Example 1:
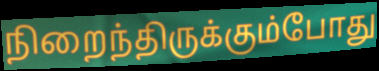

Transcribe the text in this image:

நிறைந்திருக்கும்போது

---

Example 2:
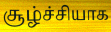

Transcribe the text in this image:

சூழ்ச்சியாக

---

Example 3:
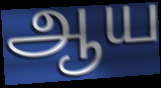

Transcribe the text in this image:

ஆய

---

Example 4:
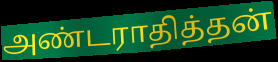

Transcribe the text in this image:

அண்டராதித்தன்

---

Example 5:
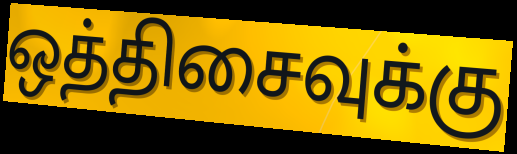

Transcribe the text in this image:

ஒத்திசைவுக்கு